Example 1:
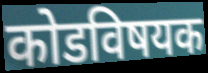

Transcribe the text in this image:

कोडविषयक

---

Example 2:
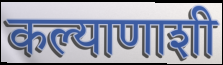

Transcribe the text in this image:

कल्याणाशी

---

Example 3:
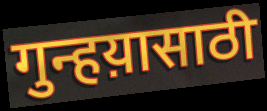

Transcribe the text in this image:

गुन्हय़ासाठी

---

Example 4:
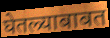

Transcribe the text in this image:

घेतल्याबाबत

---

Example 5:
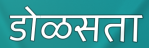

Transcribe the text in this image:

डोळसता